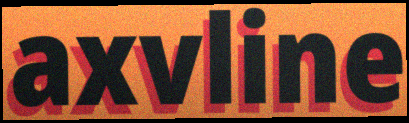
axvline